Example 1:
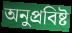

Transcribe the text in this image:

অনুপ্রবিষ্ট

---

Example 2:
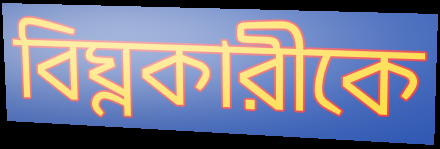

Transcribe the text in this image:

বিঘ্নকারীকে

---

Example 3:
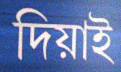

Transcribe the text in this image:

দিয়াই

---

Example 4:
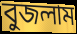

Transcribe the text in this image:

বুজলাম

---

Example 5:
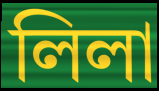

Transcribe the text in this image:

লিলা